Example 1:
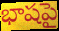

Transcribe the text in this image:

భాషపై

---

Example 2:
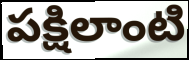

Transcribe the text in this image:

పక్షిలాంటి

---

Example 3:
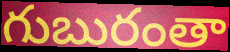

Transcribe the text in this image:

గుబురంతా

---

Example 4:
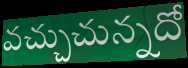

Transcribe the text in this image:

వచ్చుచున్నదో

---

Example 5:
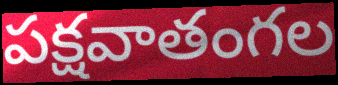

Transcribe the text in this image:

పక్షవాతంగల